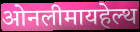
ओनलीमायहेल्थ